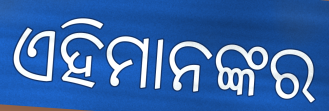
ଏହିମାନଙ୍କର